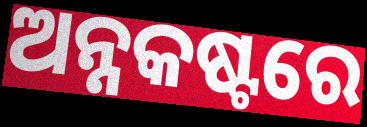
ଅନ୍ନକଷ୍ଟରେ